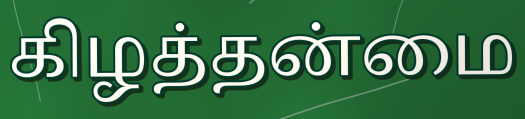
கிழத்தன்மை